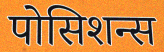
पोसिशन्स